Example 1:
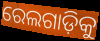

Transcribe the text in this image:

ରେଲଗାଡ଼ିକୁ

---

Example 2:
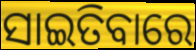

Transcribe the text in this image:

ସାଇତିବାରେ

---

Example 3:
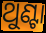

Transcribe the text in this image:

ଥୁଣ୍ଟା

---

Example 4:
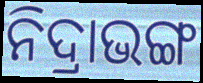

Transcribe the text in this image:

ନିଦ୍ରାଭଙ୍ଗ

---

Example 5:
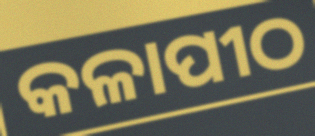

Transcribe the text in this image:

କଳାପୀଠ